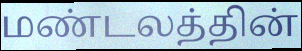
மண்டலத்தின்